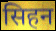
सिहन